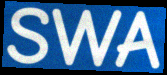
SWA